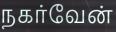
நகர்வேன்